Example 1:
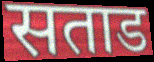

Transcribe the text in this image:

सताड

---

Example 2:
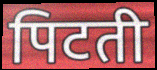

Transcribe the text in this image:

पिटती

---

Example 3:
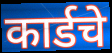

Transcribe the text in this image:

कार्डचे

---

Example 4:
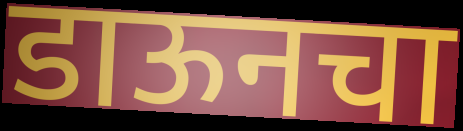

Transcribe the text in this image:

डाऊनचा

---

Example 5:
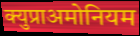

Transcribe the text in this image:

क्युप्राअमोनियम